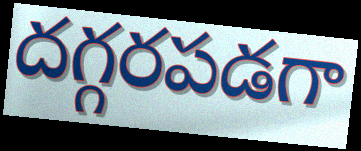
దగ్గరపడగా